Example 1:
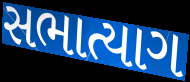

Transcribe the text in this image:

સભાત્યાગ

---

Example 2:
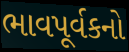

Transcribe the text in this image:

ભાવપૂર્વકનો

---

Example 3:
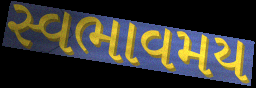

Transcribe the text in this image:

સ્વભાવમય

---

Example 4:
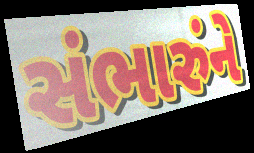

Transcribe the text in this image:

સંભારુંને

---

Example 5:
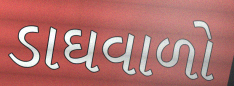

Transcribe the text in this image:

ડાઘવાળો